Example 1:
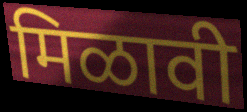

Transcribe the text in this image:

मिळावी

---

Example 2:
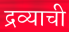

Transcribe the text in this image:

द्रव्याची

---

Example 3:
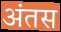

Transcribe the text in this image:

अंतस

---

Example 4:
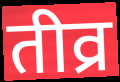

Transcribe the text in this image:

तीव्र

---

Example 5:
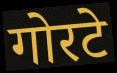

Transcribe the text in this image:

गोरटे